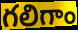
గలిగాం